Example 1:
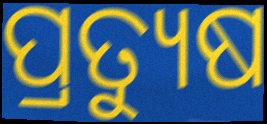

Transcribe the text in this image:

ପ୍ରତ୍ୟୁଷ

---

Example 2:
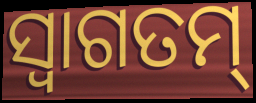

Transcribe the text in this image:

ସ୍ୱାଗତମ୍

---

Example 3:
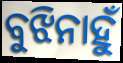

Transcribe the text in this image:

ବୁଝିନାହୁଁ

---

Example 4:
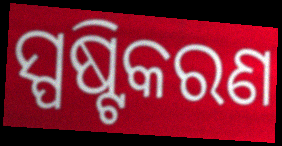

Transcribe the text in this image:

ସ୍ପଷ୍ଟିକରଣ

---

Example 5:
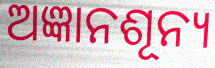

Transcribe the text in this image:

ଅଜ୍ଞାନଶୂନ୍ୟ